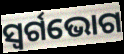
ସ୍ୱର୍ଗଭୋଗ